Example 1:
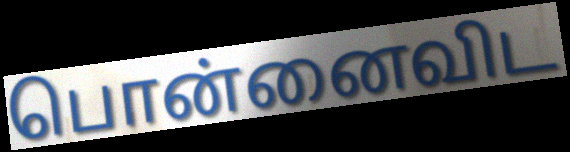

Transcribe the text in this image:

பொன்னைவிட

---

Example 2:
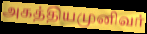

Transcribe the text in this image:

அகத்தியமுனிவர்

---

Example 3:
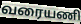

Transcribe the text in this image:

வரையணி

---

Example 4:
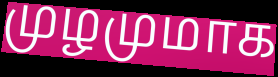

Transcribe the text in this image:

முழமுமாக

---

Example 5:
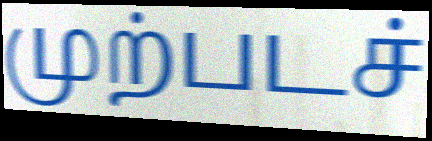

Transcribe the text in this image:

முற்படச்